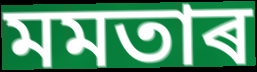
মমতাৰ